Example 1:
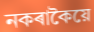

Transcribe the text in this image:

নকৰাকৈয়ে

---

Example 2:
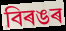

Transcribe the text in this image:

বিৰঙৰ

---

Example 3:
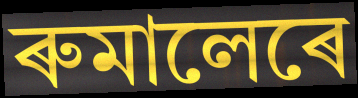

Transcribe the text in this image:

ৰুমালেৰে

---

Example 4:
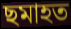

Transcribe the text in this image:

ছমাহত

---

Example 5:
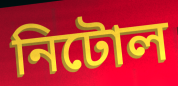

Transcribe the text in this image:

নিটোল